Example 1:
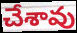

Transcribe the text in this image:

చేశావు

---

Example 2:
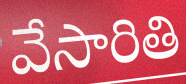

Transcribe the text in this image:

వేసారితి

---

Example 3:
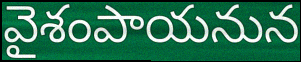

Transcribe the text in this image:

వైశంపాయనున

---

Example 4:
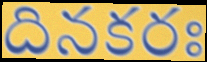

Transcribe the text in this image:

దినకరః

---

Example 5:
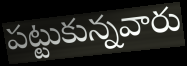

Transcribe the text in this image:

పట్టుకున్నవారు